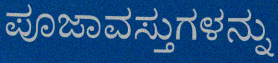
ಪೂಜಾವಸ್ತುಗಳನ್ನು